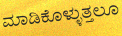
ಮಾಡಿಕೊಳ್ಳುತ್ತಲೂ